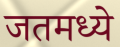
जतमध्ये